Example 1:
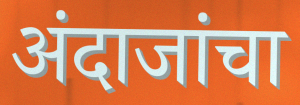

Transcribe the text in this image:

अंदाजांचा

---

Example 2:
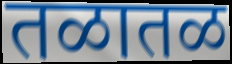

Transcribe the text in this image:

तळातळ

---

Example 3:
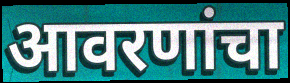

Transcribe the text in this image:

आवरणांचा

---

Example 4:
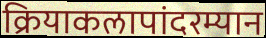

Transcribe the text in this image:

क्रियाकलापांदरम्यान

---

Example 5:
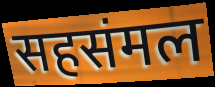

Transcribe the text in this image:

सहसंमल